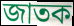
জাতক